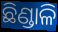
ଛିଣ୍ଡାଳି